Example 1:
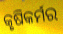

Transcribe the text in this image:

କୃଷିକର୍ମର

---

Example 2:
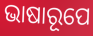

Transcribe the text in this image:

ଭାଷାରୂପେ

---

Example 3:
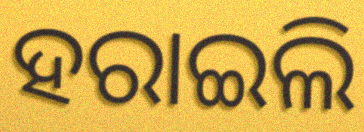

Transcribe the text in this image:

ହରାଇଲି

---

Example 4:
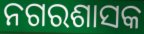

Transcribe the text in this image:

ନଗରଶାସକ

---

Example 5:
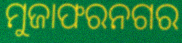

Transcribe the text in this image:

ମୁଜାଫରନଗର